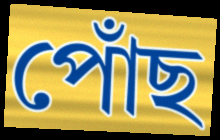
পোঁছ